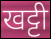
खट्टी